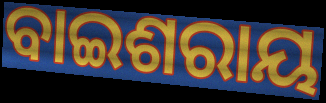
ବାଇଶରାୟ